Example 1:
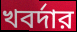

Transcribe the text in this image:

খবর্দার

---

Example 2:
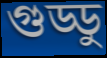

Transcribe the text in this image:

গুড্ডু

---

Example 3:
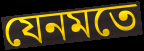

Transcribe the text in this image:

যেনমতে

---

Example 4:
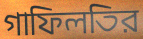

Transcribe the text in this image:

গাফিলতির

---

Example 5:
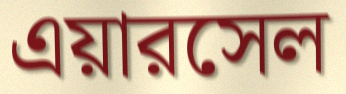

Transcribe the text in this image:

এয়ারসেল